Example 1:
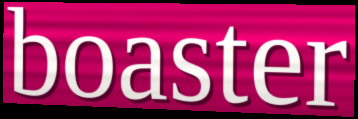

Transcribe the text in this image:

boaster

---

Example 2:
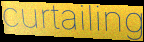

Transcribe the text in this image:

curtailing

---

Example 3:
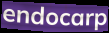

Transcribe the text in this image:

endocarp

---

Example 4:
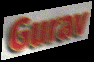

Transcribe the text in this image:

Gurav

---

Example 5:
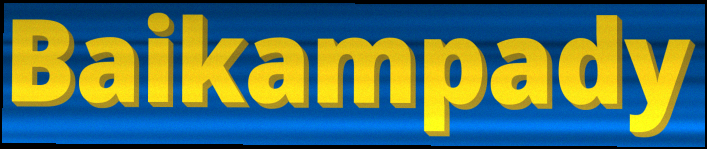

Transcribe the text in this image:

Baikampady